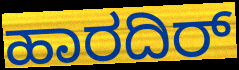
ಹಾರದಿರ್